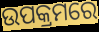
ଉପକ୍ରମରେ